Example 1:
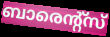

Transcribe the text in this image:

ബാരെന്റ്സ്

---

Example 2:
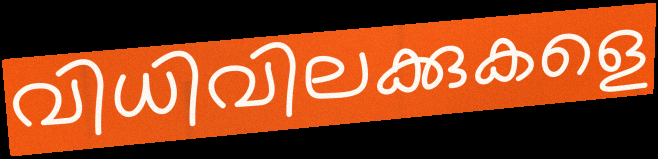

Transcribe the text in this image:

വിധിവിലക്കുകളെ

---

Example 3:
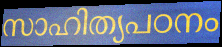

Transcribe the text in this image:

സാഹിത്യപഠനം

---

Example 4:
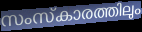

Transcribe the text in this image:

സംസ്‌കാരത്തിലും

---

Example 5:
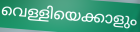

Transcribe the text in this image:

വെള്ളിയെക്കാളും